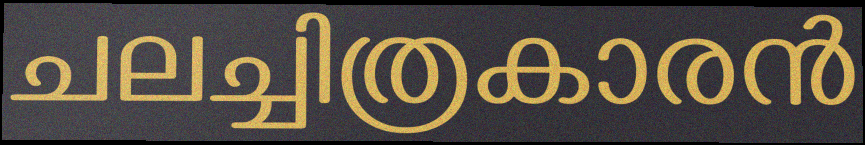
ചലച്ചിത്രകാരൻ